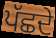
ਪੱਛਦੇ